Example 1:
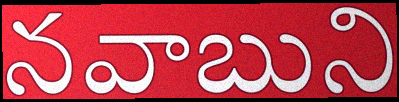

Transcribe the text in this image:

నవాబుని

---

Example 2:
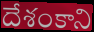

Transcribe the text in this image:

దేశంకాని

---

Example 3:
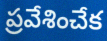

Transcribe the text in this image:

ప్రవేశించేక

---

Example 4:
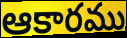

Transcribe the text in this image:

ఆకారము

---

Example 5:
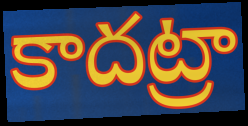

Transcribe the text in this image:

కాదట్రా